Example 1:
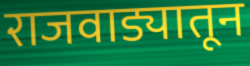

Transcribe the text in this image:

राजवाड्यातून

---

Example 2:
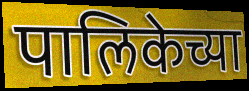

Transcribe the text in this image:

पालिकेच्या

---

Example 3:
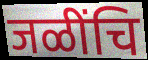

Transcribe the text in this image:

जळींचि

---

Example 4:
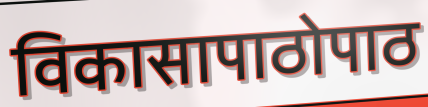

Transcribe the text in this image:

विकासापाठोपाठ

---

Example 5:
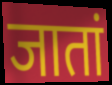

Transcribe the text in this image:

जातां